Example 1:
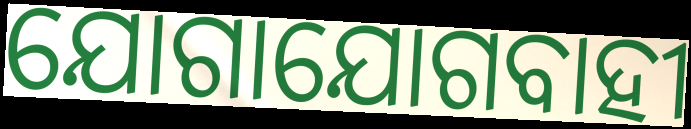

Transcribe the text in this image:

ଯୋଗାଯୋଗବାହୀ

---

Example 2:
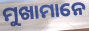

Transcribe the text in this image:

ମୁଖାମାନେ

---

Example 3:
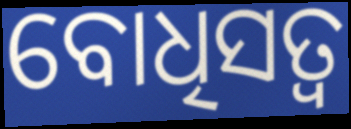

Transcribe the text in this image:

ବୋଧିସତ୍ବ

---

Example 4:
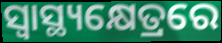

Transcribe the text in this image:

ସ୍ୱାସ୍ଥ୍ୟକ୍ଷେତ୍ରରେ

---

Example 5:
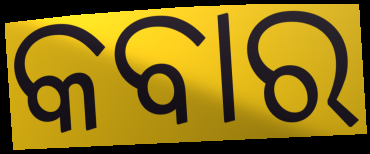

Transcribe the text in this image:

କବାର